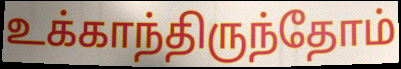
உக்காந்திருந்தோம்